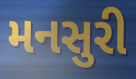
મનસુરી